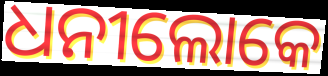
ଧନୀଲୋକେ